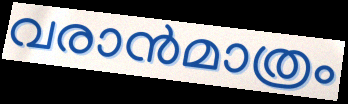
വരാൻമാത്രം